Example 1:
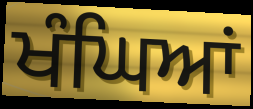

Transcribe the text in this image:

ਖੰਘਿਆਂ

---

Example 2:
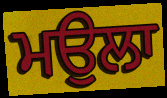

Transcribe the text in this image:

ਮਉਲਾ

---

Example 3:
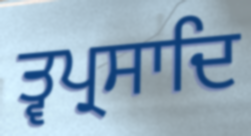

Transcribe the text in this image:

ਤ੍ਵਪ੍ਰਸਾਦਿ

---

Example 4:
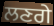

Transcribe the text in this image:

ਲਣਗੇ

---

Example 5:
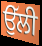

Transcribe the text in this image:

ਉੱਲੀ